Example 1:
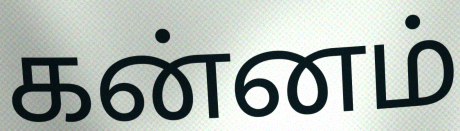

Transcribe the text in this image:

கன்னம்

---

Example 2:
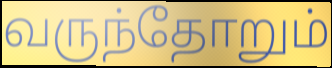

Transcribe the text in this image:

வருந்தோறும்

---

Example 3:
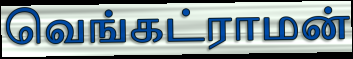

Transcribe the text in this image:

வெங்கட்ராமன்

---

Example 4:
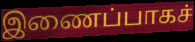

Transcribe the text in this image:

இணைப்பாகச்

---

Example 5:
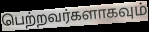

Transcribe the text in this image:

பெற்றவர்களாகவும்